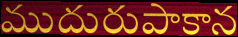
ముదురుపాకాన